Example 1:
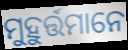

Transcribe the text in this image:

ମୁହୁର୍ତ୍ତମାନେ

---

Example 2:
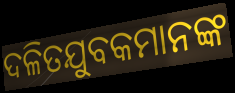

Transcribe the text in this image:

ଦଳିତଯୁବକମାନଙ୍କ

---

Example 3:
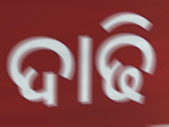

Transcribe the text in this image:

ଦାଢି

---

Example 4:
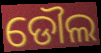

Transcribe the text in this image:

ଡୌଲ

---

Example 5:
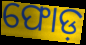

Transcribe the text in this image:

ଫୋଡ଼